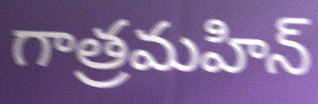
గాత్రమహిన్